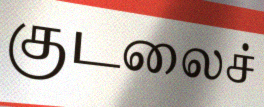
குடலைச்